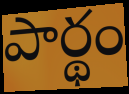
పార్థం